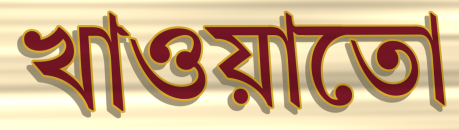
খাওয়াতো